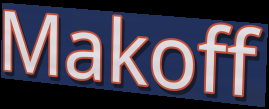
Makoff